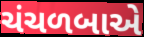
ચંચળબાએ